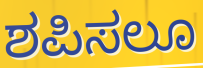
ಶಪಿಸಲೂ